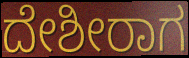
ದೇಶೀರಾಗ